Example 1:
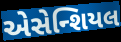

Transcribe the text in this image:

એસેન્શિયલ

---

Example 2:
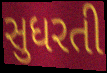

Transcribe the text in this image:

સુધરતી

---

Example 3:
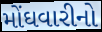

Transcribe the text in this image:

મોંઘવારીનો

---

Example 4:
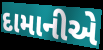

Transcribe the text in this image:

દામાનીએ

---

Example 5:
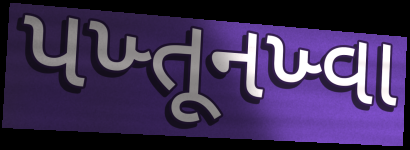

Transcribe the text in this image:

પખ્તૂનખ્વા